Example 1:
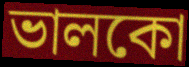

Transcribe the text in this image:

ভালকো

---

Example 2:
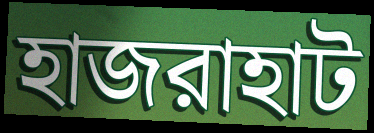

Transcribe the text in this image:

হাজরাহাট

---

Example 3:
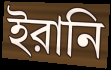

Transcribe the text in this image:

ইরানি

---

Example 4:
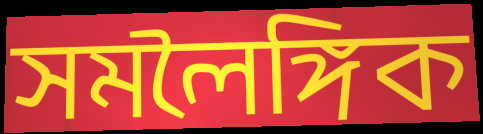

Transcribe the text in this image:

সমলৈঙ্গিক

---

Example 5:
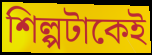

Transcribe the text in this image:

শিল্পটাকেই